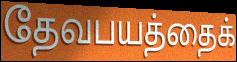
தேவபயத்தைக்